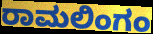
ರಾಮಲಿಂಗಂ